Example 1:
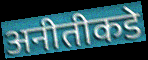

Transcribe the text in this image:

अनीतीकडे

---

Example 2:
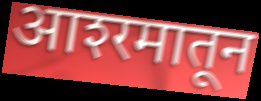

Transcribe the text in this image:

आश्रमातून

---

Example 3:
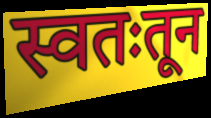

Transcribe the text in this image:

स्वतःतून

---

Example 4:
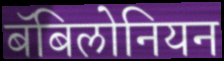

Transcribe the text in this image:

बॅबिलोनियन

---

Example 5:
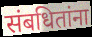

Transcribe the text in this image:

संबधितांना